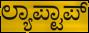
ಲ್ಯಾಪ್ಟಾಪ್